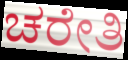
ಚರೇತಿ